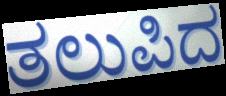
ತಲುಪಿದ